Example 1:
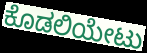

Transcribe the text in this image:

ಕೊಡಲಿಯೇಟು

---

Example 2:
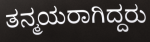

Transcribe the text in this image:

ತನ್ಮಯರಾಗಿದ್ದರು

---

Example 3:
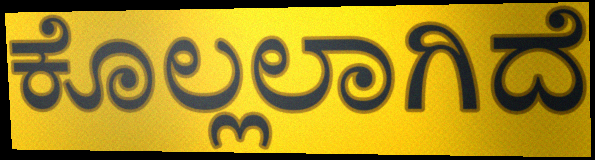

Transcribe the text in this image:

ಕೊಲ್ಲಲಾಗಿದೆ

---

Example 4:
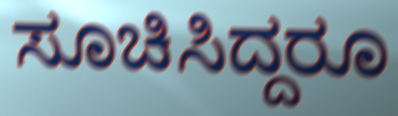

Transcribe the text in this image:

ಸೂಚಿಸಿದ್ದರೂ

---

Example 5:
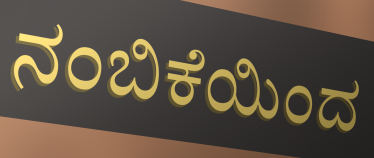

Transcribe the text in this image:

ನಂಬಿಕೆಯಿಂದ